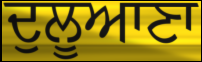
ਦੁਲੂਆਣਾ